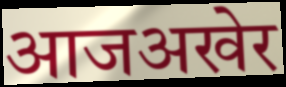
आजअखेर